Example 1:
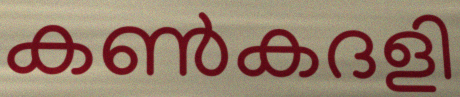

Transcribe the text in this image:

കൺകദളി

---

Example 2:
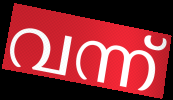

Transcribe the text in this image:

വന്ന്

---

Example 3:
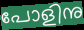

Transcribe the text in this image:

പോളിനു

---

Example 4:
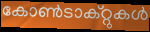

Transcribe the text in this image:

കോൺടാക്റ്റുകൾ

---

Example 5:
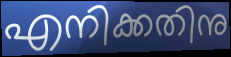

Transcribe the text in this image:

എനിക്കതിനു